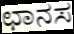
ಛಾನಸ